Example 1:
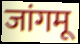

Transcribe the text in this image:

जांगमू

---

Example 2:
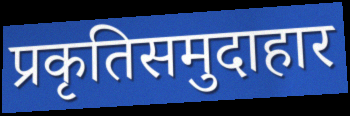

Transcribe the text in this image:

प्रकृतिसमुदाहार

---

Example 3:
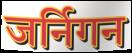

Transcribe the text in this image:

जर्निगन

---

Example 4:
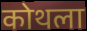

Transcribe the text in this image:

कोथला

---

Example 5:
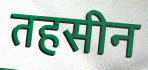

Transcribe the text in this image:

तहसीन